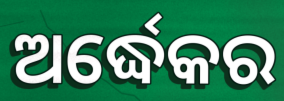
ଅର୍ଦ୍ଧେକର